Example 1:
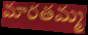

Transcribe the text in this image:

మారతమ్మ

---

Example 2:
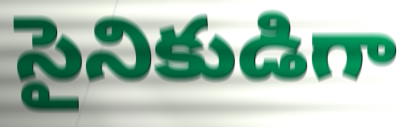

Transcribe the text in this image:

సైనికుడిగా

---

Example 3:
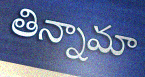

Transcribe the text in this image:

తిన్నామా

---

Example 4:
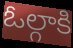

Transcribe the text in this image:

ఓల్గాకి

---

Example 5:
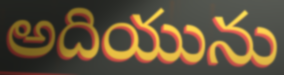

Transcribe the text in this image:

అదియును